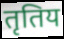
तृतिय